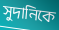
সুদানিকে